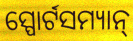
ସ୍ପୋର୍ଟସମ୍ୟାନ୍